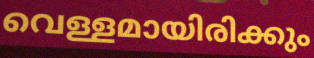
വെള്ളമായിരിക്കും